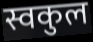
स्वकुल